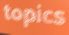
topics